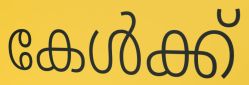
കേൾക്ക്